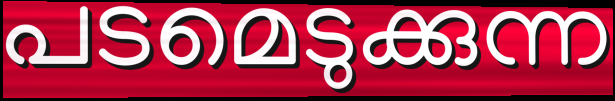
പടമെടുക്കുന്ന